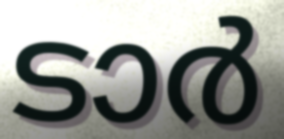
ടാർ